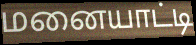
மனையாட்டி